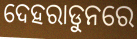
ଦେହରାଡୁନରେ